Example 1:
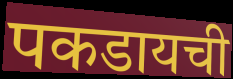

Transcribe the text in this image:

पकडायची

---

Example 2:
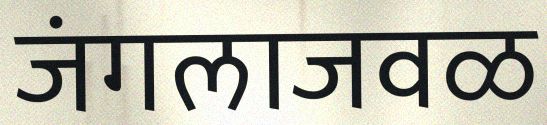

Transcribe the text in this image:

जंगलाजवळ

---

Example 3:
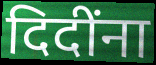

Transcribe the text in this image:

दिदींना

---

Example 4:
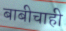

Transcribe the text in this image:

बाबीचाही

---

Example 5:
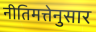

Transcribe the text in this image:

नीतिमत्तेनुसार